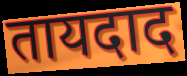
तायदाद